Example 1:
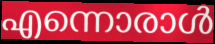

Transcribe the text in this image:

എന്നൊരാൾ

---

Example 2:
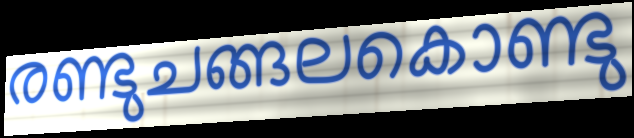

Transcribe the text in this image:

രണ്ടുചങ്ങലകൊണ്ടു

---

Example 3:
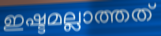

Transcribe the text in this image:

ഇഷ്ടമല്ലാത്തത്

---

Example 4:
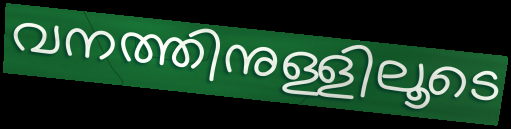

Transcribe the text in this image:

വനത്തിനുള്ളിലൂടെ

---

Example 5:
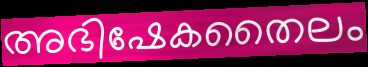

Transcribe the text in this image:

അഭിഷേകതൈലം